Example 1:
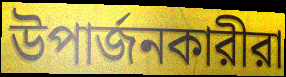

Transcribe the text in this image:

উপার্জনকারীরা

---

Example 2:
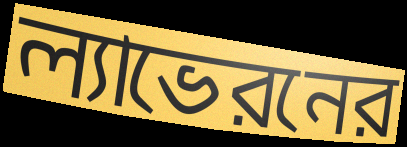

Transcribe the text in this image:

ল্যাভেরনের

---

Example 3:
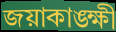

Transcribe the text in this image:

জয়াকাঙ্ক্ষী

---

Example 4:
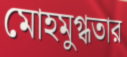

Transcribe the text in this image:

মোহমুগ্ধতার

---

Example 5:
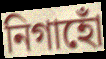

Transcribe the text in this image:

নিগাহোঁ